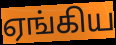
ஏங்கிய